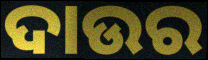
ଦାଉର